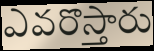
ఎవరొస్తారు